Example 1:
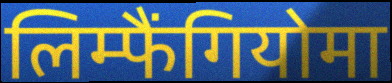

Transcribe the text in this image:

लिम्फैंगियोमा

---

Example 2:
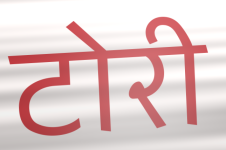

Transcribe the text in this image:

टोरी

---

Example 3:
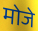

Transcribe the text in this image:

मोजे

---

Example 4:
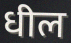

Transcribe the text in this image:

धील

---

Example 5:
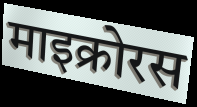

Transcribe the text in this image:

माइक्रोरस